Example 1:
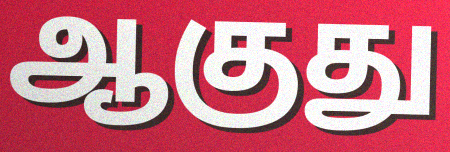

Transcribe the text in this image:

ஆகுது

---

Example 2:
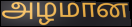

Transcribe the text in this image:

அழமான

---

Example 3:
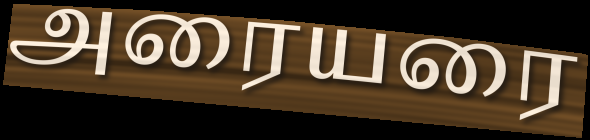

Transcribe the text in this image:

அரையரை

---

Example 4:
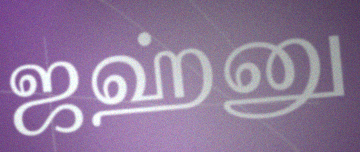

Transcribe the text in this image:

ஜஹ்னு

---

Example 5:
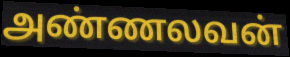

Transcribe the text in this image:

அண்ணலவன்